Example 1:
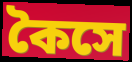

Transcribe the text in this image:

কৈসে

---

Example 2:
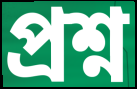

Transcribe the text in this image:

প্রশ্ন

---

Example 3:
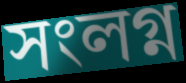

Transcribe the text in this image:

সংলগ্ন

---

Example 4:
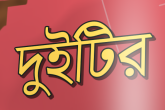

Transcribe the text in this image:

দুইটির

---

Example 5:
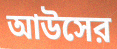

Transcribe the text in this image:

আউসের